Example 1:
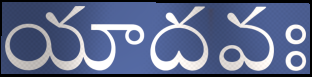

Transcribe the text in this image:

యాదవః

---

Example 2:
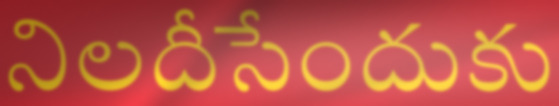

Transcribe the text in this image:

నిలదీసేందుకు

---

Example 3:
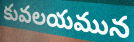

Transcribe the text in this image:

కువలయమున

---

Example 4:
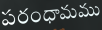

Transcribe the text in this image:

పరంధామము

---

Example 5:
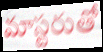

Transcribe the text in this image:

మాస్టరుతో